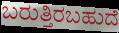
ಬರುತ್ತಿರಬಹುದೆ